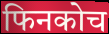
फिनकोच